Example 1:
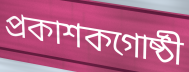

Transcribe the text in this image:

প্রকাশকগোষ্ঠী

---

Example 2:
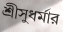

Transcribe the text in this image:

শ্রীসুধর্মার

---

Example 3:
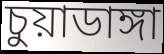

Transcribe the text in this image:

চুয়াডাঙ্গা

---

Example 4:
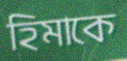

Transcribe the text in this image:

হিমাকে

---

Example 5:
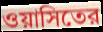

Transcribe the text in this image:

ওয়াসিতের